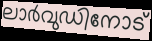
ലാർവുഡിനോട്